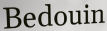
Bedouin